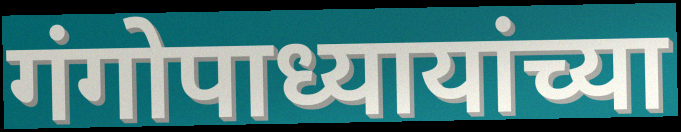
गंगोपाध्यायांच्या